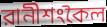
রানীশংকৈল